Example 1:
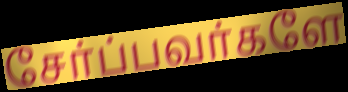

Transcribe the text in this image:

சேர்ப்பவர்களே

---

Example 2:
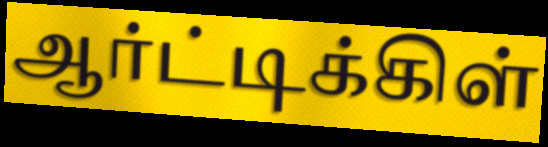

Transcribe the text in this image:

ஆர்ட்டிக்கிள்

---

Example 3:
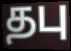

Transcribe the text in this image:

தபு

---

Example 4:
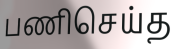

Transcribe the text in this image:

பணிசெய்த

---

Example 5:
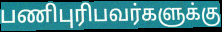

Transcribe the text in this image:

பணிபுரிபவர்களுக்கு